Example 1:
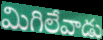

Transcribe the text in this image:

మిగిలేవాడు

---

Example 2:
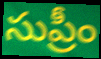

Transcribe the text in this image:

సుప్రీం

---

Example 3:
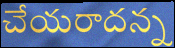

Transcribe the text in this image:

చేయరాదన్న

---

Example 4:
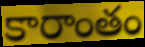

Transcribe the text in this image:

కారాంతం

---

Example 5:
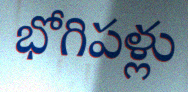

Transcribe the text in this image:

భోగిపళ్లు